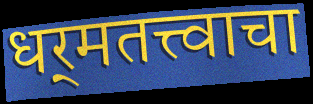
धर्मतत्त्वाचा